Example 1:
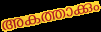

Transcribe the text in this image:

അകത്താക്കും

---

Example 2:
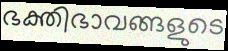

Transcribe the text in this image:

ഭക്തിഭാവങ്ങളുടെ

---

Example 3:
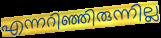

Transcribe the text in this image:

എന്നറിഞ്ഞിരുന്നില്ല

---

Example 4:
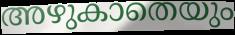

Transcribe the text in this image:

അഴുകാതെയും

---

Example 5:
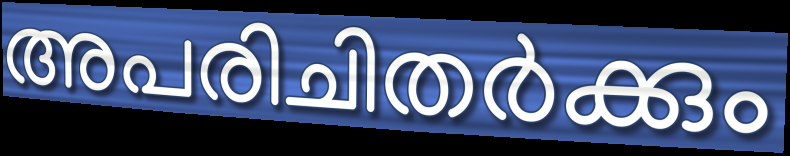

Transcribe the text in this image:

അപരിചിതർക്കും